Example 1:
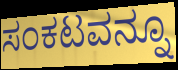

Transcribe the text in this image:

ಸಂಕಟವನ್ನೂ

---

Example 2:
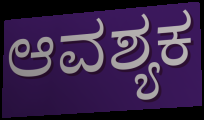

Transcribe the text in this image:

ಆವಶ್ಯಕ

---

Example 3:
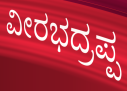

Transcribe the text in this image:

ವೀರಭದ್ರಪ್ಪ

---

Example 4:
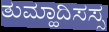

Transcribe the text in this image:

ತುಮ್ಹಾದಿಸಸ್ಸ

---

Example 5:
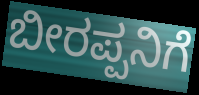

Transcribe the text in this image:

ಬೀರಪ್ಪನಿಗೆ